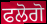
ਫਲੋਗੋ